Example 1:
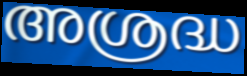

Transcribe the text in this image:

അശ്രദ്ധ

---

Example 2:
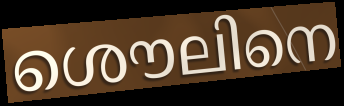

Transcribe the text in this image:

ശൌലിനെ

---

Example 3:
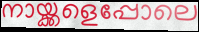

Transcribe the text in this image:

നായ്ക്കളെപ്പോലെ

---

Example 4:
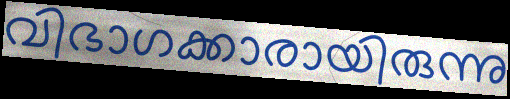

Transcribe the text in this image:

വിഭാഗക്കാരായിരുന്നു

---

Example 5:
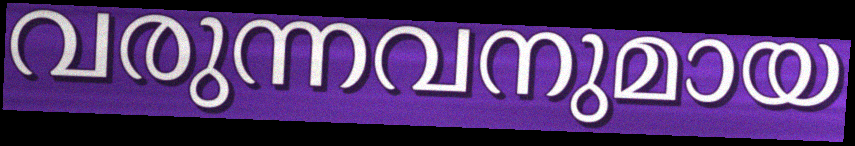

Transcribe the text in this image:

വരുന്നവനുമായ